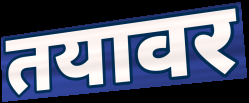
तयावर